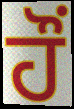
ਹੌਂ